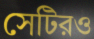
সেটিরও